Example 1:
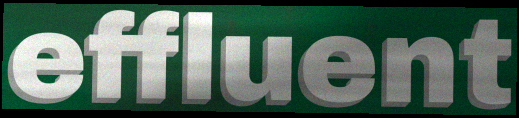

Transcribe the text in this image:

effluent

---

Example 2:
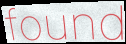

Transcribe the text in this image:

found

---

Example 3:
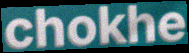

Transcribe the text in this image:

chokhe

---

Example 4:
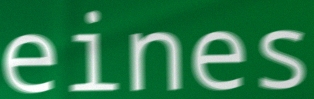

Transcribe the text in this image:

eines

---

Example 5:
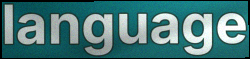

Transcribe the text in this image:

language